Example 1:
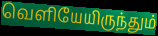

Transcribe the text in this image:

வெளியேயிருந்தும்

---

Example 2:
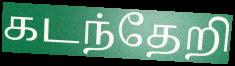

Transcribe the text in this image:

கடந்தேறி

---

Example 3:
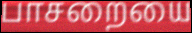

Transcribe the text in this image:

பாசறையை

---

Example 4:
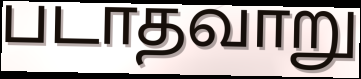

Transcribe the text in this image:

படாதவாறு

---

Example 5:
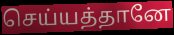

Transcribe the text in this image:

செய்யத்தானே